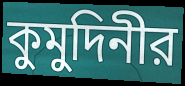
কুমুদিনীর